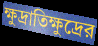
ক্ষুদ্রাতিক্ষুদ্রের